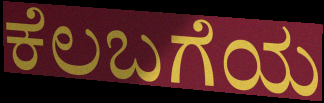
ಕೆಲಬಗೆಯ